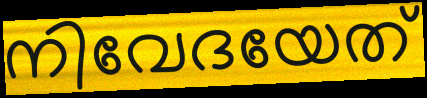
നിവേദയേത്